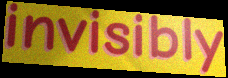
invisibly